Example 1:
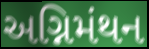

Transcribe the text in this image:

અગ્નિમંથન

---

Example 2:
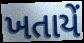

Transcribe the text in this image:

ખતાયેં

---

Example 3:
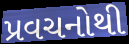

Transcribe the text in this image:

પ્રવચનોથી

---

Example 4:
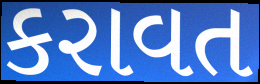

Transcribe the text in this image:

કરાવત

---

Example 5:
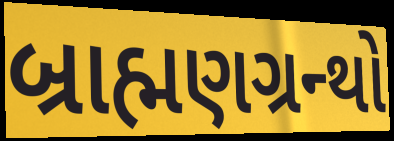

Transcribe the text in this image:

બ્રાહ્મણગ્રન્થો